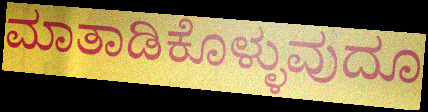
ಮಾತಾಡಿಕೊಳ್ಳುವುದೂ